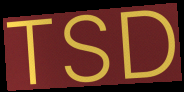
TSD